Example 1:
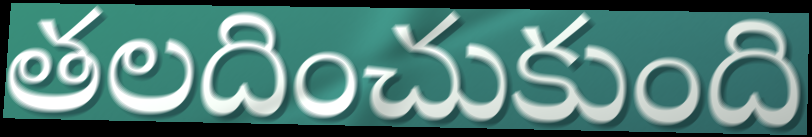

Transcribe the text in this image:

తలదించుకుంది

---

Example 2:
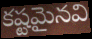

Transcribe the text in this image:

కష్టమైనవి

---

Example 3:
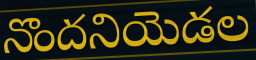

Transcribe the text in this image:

నొందనియెడల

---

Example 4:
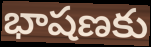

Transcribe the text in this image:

భాషణకు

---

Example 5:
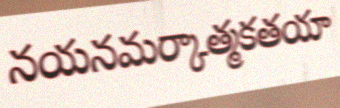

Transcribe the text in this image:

నయనమర్కాత్మకతయా